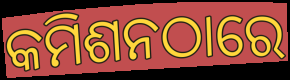
କମିଶନଠାରେ